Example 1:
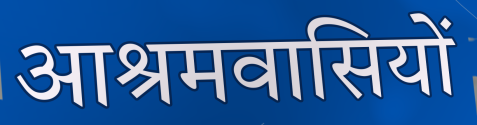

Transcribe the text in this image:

आश्रमवासियों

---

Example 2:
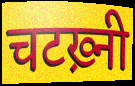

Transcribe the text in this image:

चटख़्नी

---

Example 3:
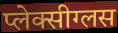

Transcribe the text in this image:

प्लेक्सीग्लस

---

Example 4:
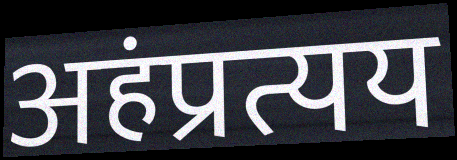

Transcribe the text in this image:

अहंप्रत्यय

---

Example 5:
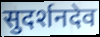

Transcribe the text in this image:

सुदर्शनदेव